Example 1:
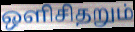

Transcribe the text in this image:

ஒளிசிதறும்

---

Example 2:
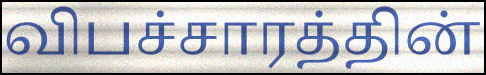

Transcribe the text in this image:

விபச்சாரத்தின்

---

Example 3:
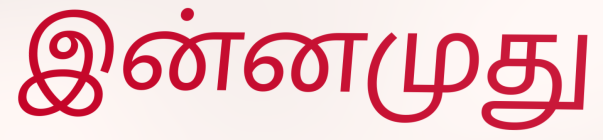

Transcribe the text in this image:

இன்னமுது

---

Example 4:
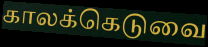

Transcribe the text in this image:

காலக்கெடுவை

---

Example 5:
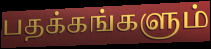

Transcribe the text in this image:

பதக்கங்களும்